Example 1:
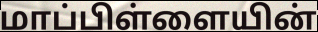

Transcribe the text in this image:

மாப்பிள்ளையின்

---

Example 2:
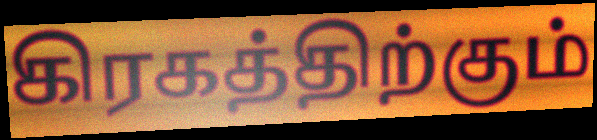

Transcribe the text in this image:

கிரகத்திற்கும்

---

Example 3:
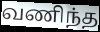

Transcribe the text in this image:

வணிந்த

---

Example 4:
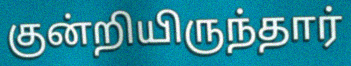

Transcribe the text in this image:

குன்றியிருந்தார்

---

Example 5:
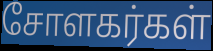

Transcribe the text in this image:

சோளகர்கள்